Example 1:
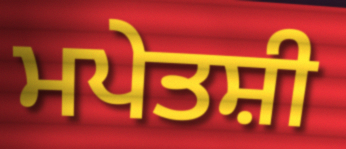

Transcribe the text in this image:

ਮਪੇਤਸ਼ੀ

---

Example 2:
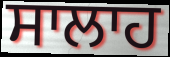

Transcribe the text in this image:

ਸਾਲਾਹ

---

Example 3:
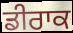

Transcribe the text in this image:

ਡੀਰਾਕ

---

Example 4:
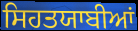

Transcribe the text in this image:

ਸਿਹਤਯਾਬੀਆਂ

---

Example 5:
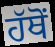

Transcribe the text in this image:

ਹੱਥੋਂ